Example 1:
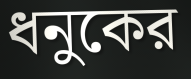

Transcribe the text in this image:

ধনুকের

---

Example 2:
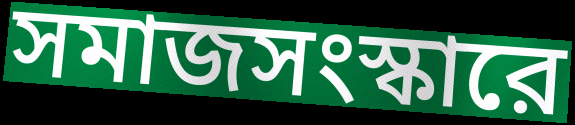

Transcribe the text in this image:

সমাজসংস্কারে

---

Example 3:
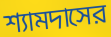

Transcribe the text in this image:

শ্যামদাসের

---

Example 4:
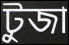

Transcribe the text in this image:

টুজা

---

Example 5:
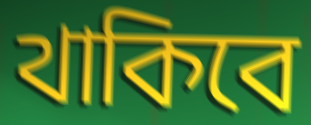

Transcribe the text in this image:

থাকিবে